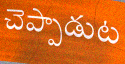
చెప్పాడుట